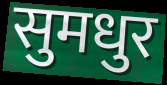
सुमधुर